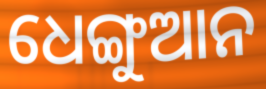
ଧେଙ୍ଗୁଆନ